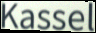
Kassel